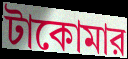
টাকোমার